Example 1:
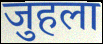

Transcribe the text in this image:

जुहला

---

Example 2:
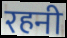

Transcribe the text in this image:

रहनी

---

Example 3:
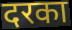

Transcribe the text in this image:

दरका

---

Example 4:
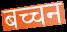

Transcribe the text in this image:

बच्चन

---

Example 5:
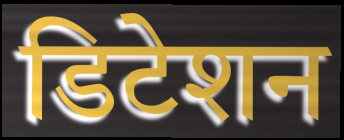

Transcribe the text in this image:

डिटेशन